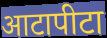
आटापीटा